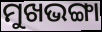
ମୁଖଭଙ୍ଗା